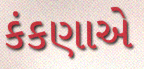
કંકણાએ